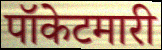
पॉकेटमारी